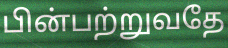
பின்பற்றுவதே